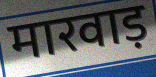
मारवाड़